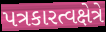
પત્રકારત્વક્ષેત્રે